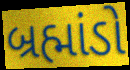
બ્રહ્માંડો